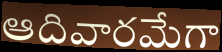
ఆదివారమేగా